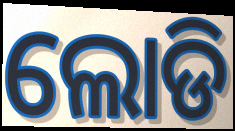
ଲୋଡି